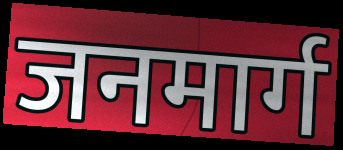
जनमार्ग